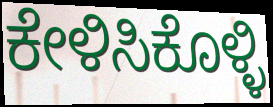
ಕೇಳಿಸಿಕೊಳ್ಳಿ